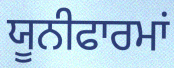
ਯੂਨੀਫਾਰਮਾਂ